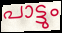
പാട്ടും